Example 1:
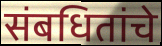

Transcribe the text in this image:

संबधितांचे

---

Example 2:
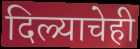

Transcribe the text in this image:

दिल्याचेही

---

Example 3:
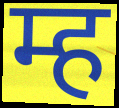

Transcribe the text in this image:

म्ह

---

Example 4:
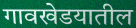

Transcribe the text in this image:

गावखेडयातील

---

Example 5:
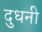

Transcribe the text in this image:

दुधनी